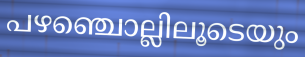
പഴഞ്ചൊല്ലിലൂടെയും